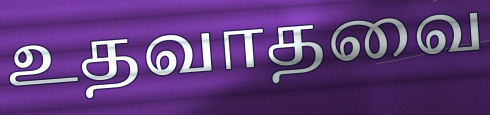
உதவாதவை